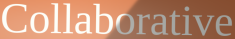
Collaborative